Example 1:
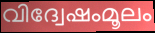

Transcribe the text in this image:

വിദ്വേഷംമൂലം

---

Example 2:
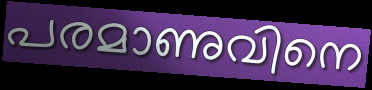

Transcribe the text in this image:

പരമാണുവിനെ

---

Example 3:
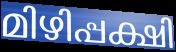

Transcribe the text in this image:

മിഴിപ്പക്ഷി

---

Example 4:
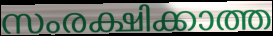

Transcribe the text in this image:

സംരക്ഷിക്കാത്ത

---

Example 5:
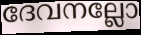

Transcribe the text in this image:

ദേവനല്ലോ